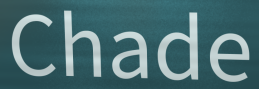
Chade